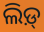
ଲିଡ଼୍